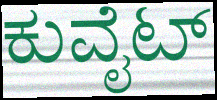
ಕುವೈಟ್